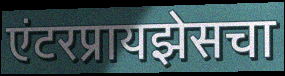
एंटरप्रायझेसचा